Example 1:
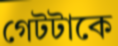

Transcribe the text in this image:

গেটটাকে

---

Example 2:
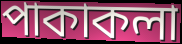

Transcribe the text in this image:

পাকাকলা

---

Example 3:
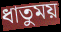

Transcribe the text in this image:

ধাতুময়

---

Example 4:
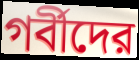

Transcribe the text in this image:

গর্বীদের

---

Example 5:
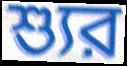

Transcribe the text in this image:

শ্যুর